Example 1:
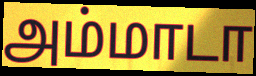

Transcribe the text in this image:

அம்மாடா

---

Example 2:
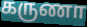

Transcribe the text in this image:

கருணா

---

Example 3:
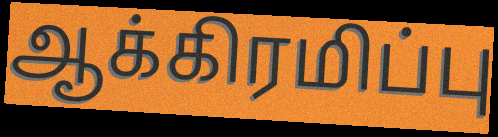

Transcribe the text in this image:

ஆக்கிரமிப்பு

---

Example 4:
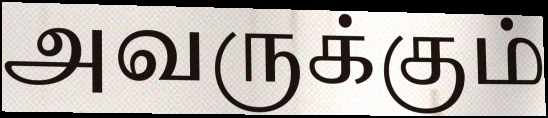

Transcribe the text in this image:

அவருக்கும்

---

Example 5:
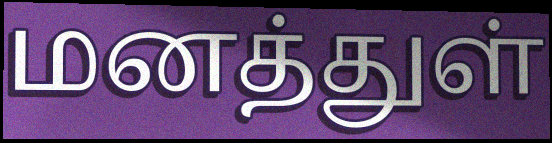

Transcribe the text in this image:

மனத்துள்